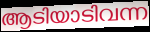
ആടിയാടിവന്ന